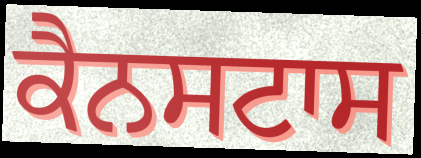
ਕੈਨਸਟਾਸ